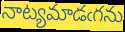
నాట్యమాడఁగను